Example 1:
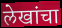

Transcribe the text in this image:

लेखांचा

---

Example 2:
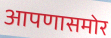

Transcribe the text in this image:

आपणासमोर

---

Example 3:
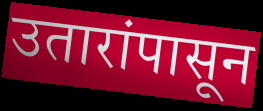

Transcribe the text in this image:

उतारांपासून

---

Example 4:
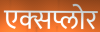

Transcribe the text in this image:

एक्‍सप्लोर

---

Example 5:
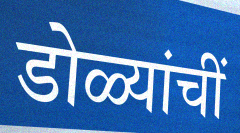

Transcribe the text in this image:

डोळ्यांचीं